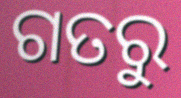
ଗତରୁ